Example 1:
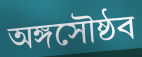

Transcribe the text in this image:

অঙ্গসৌষ্ঠব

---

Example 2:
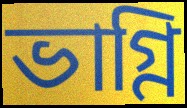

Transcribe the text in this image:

ভাগ্নি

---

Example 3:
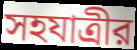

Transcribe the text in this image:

সহযাত্রীর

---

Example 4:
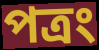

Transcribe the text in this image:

পত্রং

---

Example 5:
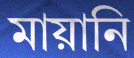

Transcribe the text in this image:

মায়ানি